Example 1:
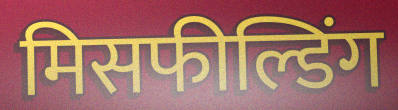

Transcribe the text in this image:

मिसफील्डिंग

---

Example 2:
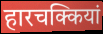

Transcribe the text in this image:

हारचक्कियां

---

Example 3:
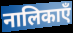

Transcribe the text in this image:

नालिकाएँ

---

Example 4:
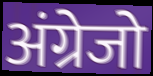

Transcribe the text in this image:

अंग्रेजो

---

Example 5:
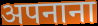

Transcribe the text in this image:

अपनाना